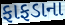
ફાફડાના